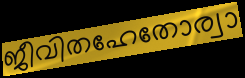
ജീവിതഹേതോര്വാ